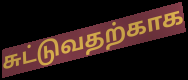
சுட்டுவதற்காக